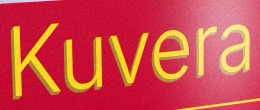
Kuvera